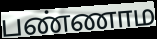
பண்ணாம